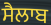
ਸੈਲਾਬ